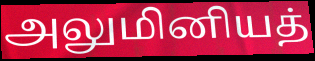
அலுமினியத்